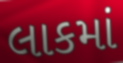
લાકમાં